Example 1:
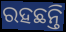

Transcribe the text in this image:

ରହଛନ୍ତି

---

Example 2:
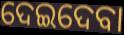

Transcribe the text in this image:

ଦେଇଦେବା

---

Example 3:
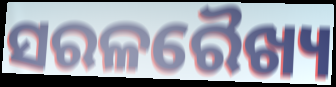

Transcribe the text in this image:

ସରଳରୈଖ୍ୟ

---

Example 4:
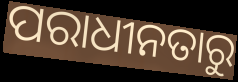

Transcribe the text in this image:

ପରାଧୀନତାରୁ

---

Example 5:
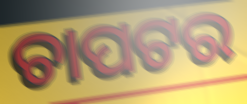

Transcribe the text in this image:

ଚାପଟର